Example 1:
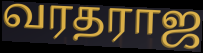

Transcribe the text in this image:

வரதராஜ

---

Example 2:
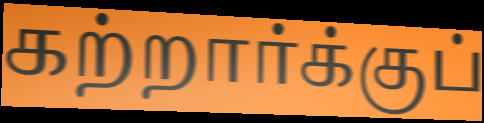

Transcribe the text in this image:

கற்றார்க்குப்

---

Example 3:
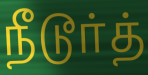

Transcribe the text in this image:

நீடூர்த்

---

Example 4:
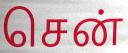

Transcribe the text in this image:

சென்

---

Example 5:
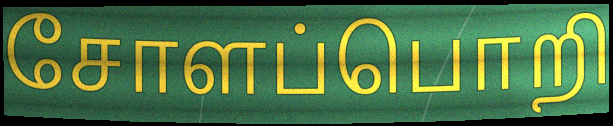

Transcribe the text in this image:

சோளப்பொறி